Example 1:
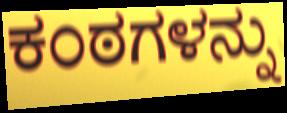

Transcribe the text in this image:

ಕಂಠಗಳನ್ನು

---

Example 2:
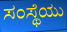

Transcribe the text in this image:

ಸಂಸ್ಥೆಯು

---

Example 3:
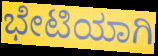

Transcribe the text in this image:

ಭೇಟಿಯಾಗಿ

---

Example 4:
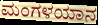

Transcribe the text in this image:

ಮಂಗಳಯಾನ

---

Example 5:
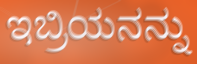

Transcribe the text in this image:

ಇಬ್ರಿಯನನ್ನು